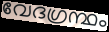
വേദഗ്രന്ഥം